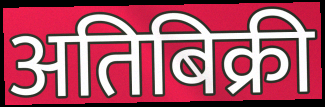
अतिबिक्री